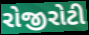
રોજીરોટી